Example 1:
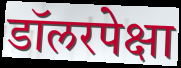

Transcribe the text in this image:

डॉलरपेक्षा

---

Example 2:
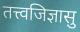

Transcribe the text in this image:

तत्त्वजिज्ञासु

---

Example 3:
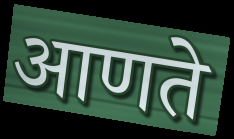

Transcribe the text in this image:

आणते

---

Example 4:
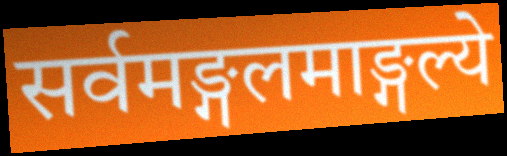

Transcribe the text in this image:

सर्वमङ्गलमाङ्गल्ये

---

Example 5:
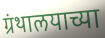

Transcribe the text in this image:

ग्रंथालयाच्या